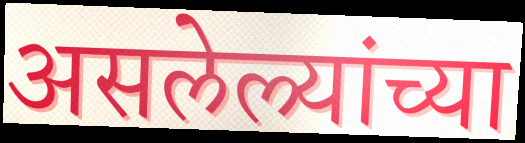
असलेल्यांच्या